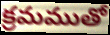
క్రమముతో